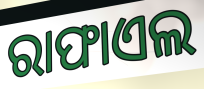
ରାଫାଏଲ